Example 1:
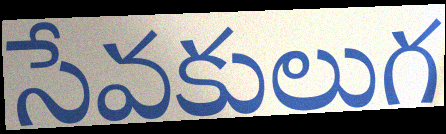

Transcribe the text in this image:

సేవకులుగ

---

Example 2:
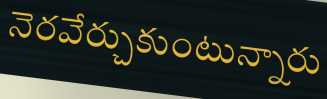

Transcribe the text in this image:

నెరవేర్చుకుంటున్నారు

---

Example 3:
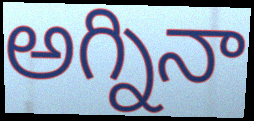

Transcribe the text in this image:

అగ్నినా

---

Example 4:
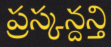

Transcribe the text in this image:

ప్రస్కన్దన్తి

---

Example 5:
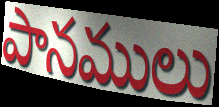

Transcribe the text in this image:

పానములు